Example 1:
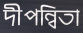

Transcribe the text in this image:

দীপন্বিতা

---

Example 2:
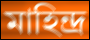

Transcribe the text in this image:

মাহিন্দ্র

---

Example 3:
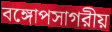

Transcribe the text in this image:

বঙ্গোপসাগরীয়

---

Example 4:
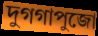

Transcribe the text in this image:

দুগগাপুজো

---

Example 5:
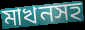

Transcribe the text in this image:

মাখনসহ